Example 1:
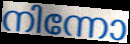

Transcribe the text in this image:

നിന്നോ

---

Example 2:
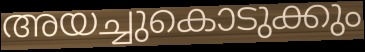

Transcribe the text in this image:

അയച്ചുകൊടുക്കും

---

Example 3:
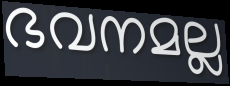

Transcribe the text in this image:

ഭവനമല്ല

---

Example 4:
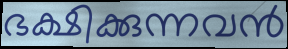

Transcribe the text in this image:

ഭക്ഷിക്കുന്നവൻ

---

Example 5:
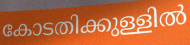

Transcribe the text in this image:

കോടതിക്കുള്ളിൽ